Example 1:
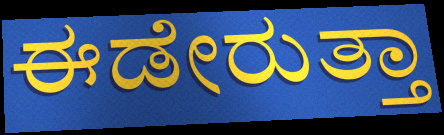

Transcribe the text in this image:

ಈಡೇರುತ್ತಾ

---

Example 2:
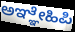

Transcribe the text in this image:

ಅಞ್ಞೇಹಿಪಿ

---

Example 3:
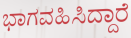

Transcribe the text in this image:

ಭಾಗವಹಿಸಿದ್ದಾರೆ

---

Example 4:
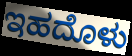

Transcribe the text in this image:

ಇಹದೊಳು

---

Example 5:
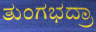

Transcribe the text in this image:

ತುಂಗಭದ್ರಾ